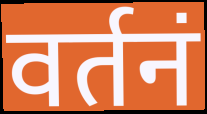
वर्तनं